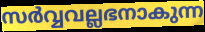
സർവ്വവല്ലഭനാകുന്ന